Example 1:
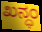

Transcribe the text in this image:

ಖನ್ಧಂ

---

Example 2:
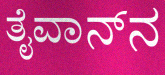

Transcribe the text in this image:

ತೈವಾನ್‌ನ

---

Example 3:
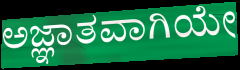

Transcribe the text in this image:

ಅಜ್ಞಾತವಾಗಿಯೇ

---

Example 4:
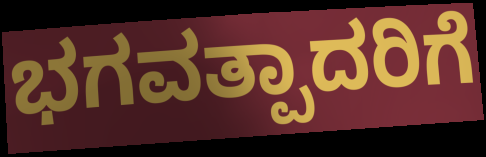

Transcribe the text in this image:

ಭಗವತ್ಪಾದರಿಗೆ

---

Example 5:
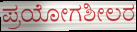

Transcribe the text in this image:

ಪ್ರಯೋಗಶೀಲರ